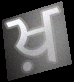
ਖ਼